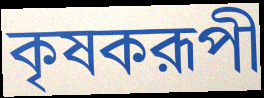
কৃষকরূপী